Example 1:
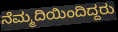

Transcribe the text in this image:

ನೆಮ್ಮದಿಯಿಂದಿದ್ದರು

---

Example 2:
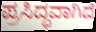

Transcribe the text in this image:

ಪ್ರಸಿದ್ಧವಾಗಿದೆ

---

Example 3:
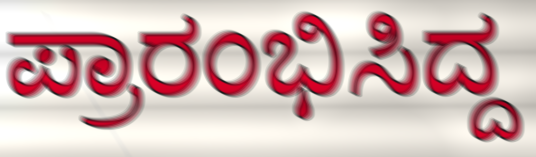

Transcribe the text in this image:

ಪ್ರಾರಂಭಿಸಿದ್ದ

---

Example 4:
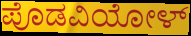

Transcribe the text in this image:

ಪೊಡವಿಯೋಳ್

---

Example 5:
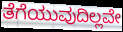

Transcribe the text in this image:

ತೆಗೆಯುವುದಿಲ್ಲವೇ